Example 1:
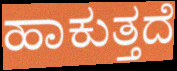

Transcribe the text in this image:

ಹಾಕುತ್ತದೆ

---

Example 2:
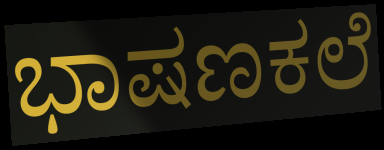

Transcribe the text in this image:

ಭಾಷಣಕಲೆ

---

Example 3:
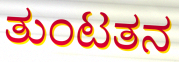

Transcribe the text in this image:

ತುಂಟತನ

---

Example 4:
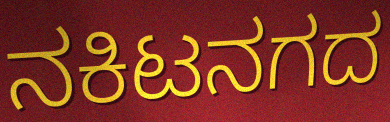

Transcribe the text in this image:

ನಕಿಟನಗದ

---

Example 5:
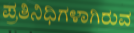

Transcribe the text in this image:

ಪ್ರತಿನಿಧಿಗಳಾಗಿರುವ